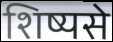
शिष्यसे